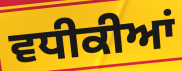
ਵਧੀਕੀਆਂ